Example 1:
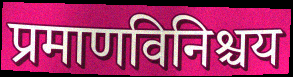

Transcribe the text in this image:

प्रमाणविनिश्चय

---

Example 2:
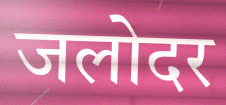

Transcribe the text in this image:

जलोदर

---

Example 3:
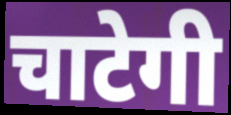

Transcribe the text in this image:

चाटेगी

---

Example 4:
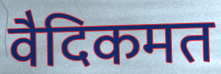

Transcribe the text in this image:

वैदिकमत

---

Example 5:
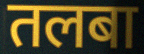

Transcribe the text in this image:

तलबा